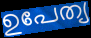
ഉപേത്യ